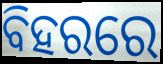
ବିହରରେ